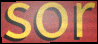
sor